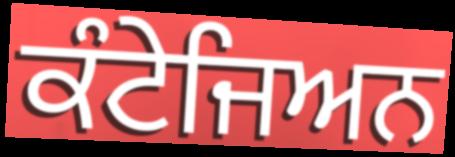
ਕੰਟੇਜਿਅਨ